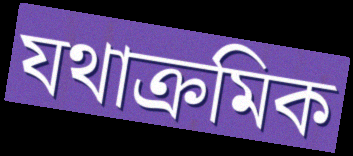
যথাক্ৰমিক